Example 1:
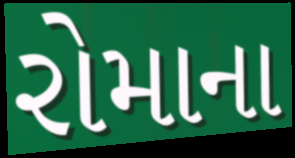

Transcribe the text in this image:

રોમાના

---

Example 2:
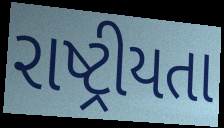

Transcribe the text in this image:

રાષ્ટ્રીયતા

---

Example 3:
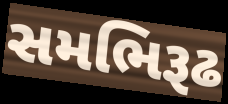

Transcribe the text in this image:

સમભિરૂઢ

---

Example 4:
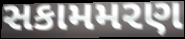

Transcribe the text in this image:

સકામમરણ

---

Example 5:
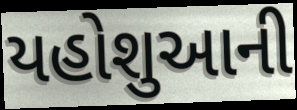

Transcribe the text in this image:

યહોશુઆની